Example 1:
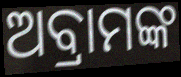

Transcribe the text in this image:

ଅବ୍ରାମଙ୍କ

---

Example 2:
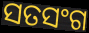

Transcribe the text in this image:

ସତସଂଗ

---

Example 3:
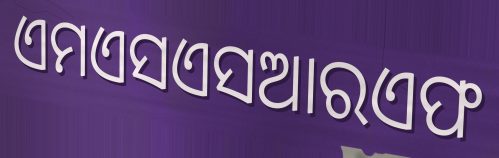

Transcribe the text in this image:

ଏମଏସଏସଆରଏଫ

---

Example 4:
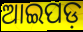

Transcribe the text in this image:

ଆଇପଡ଼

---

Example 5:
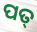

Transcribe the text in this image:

ପତ୍